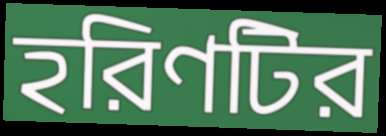
হরিণটির